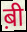
ब़ी